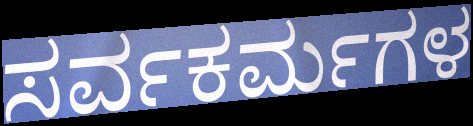
ಸರ್ವಕರ್ಮಗಳ